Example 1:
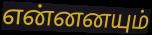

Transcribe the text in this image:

என்னனயும்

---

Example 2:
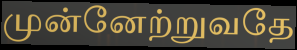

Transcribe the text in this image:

முன்னேற்றுவதே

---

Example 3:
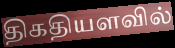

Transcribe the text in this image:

திகதியளவில்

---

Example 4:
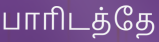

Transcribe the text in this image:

பாரிடத்தே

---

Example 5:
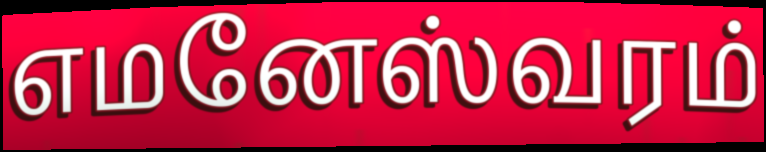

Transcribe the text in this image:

எமனேஸ்வரம்